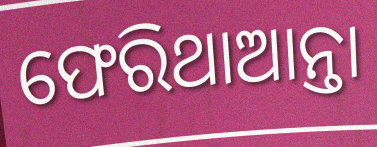
ଫେରିଥାଆନ୍ତା